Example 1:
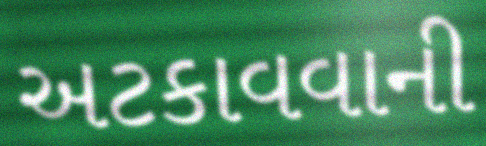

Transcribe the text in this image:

અટકાવવાની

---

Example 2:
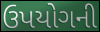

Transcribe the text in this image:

ઉપયોગની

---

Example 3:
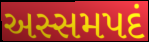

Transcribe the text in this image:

અસ્સમપદં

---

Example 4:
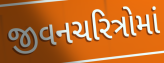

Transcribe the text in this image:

જીવનચરિત્રોમાં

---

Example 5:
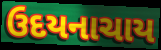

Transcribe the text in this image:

ઉદયનાચાય